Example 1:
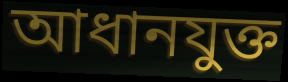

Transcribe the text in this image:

আধানযুক্ত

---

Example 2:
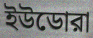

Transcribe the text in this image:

ইউডোরা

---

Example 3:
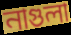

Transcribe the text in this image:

নাগুলা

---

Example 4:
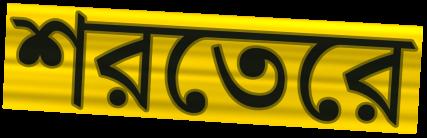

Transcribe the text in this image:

শরতেরে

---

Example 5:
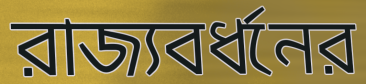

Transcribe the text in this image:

রাজ্যবর্ধনের